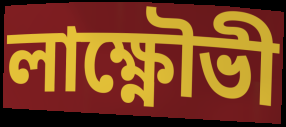
লাক্ষ্ণৌভী